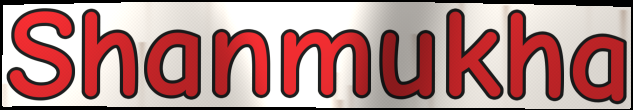
Shanmukha